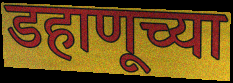
डहाणूच्या